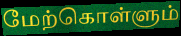
மேற்கொள்ளும்